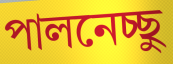
পালনেচ্ছু